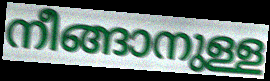
നീങ്ങാനുള്ള